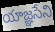
యాజ్ఞసేని